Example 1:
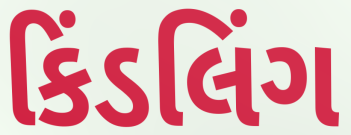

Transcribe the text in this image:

કિંડલિંગ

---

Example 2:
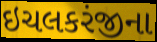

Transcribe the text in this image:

ઇચલકરંજીના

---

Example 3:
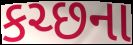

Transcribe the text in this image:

કચ્છના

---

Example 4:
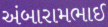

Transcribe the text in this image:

અંબારામભાઈ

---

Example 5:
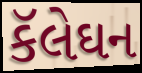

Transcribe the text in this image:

કૅલેઘન